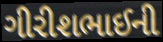
ગીરીશભાઈની